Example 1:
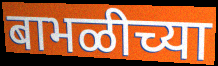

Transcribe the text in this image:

बाभळीच्या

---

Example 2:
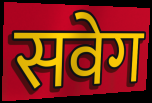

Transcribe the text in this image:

सवेग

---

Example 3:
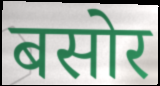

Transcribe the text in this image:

बसोर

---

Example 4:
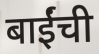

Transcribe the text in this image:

बाईंची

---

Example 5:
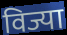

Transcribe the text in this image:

विज्या